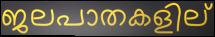
ജലപാതകളില്